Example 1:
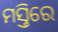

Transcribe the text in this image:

ମସ୍ତିରେ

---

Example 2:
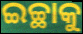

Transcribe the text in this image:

ଇଚ୍ଛାକୁ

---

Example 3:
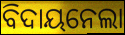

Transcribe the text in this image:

ବିଦାୟନେଲା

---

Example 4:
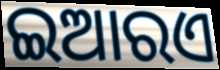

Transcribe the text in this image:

ଇଆରଏ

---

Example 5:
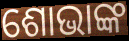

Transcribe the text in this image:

ଶୋଭାଙ୍କ